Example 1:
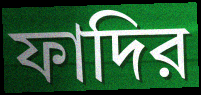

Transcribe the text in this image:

ফাদির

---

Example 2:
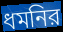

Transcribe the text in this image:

ধমনির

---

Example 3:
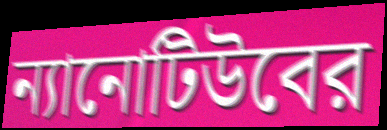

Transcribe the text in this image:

ন্যানোটিউবের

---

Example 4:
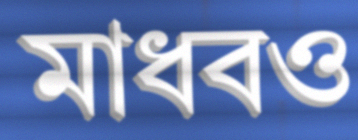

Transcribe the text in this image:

মাধবও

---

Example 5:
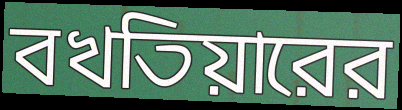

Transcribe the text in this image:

বখতিয়ারের